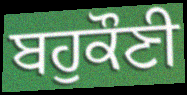
ਬਹੁਕੌਣੀ